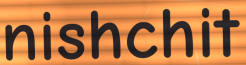
nishchit